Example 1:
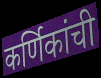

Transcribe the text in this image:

कर्णिकांची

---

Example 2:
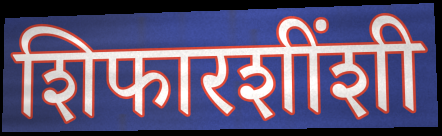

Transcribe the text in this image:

शिफारशींशी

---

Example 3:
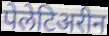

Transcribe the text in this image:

पेलेटिअरीन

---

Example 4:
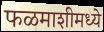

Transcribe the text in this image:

फळमाशीमध्ये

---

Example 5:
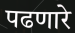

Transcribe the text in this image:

पढणारे